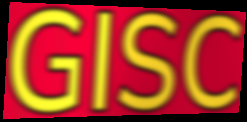
GISC